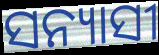
ସନ୍ୟାସୀ